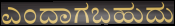
ಎಂದಾಗಬಹುದು